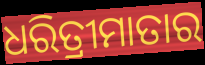
ଧରିତ୍ରୀମାତାର